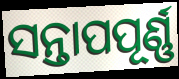
ସନ୍ତାପପୂର୍ଣ୍ଣ